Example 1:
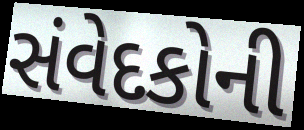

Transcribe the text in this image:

સંવેદકોની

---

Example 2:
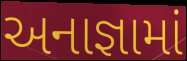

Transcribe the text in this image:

અનાજ્ઞામાં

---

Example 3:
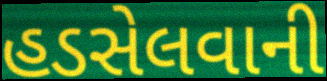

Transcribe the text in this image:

હડસેલવાની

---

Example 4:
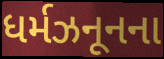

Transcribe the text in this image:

ધર્મઝનૂનના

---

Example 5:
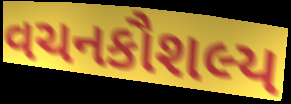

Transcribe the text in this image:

વચનકૌશલ્ય